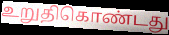
உறுதிகொண்டது